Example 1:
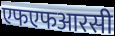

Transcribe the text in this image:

एफएफआरसी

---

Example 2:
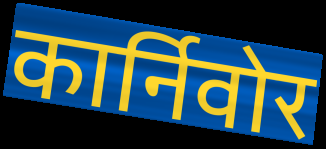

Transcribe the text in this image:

कार्निवोर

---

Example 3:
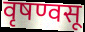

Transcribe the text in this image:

वृषण्वसू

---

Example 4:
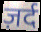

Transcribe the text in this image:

ज़र्द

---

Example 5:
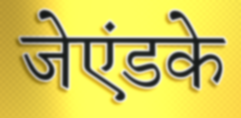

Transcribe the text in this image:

जेएंडके